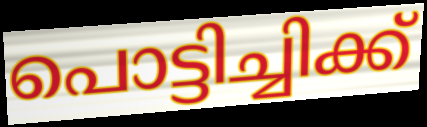
പൊട്ടിച്ചിക്ക്